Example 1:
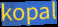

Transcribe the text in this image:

kopal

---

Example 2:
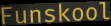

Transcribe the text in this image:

Funskool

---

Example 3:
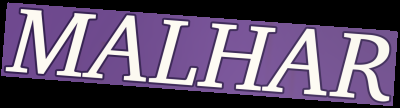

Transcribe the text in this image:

MALHAR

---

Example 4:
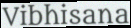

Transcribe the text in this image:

Vibhisana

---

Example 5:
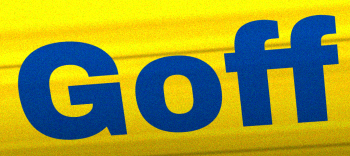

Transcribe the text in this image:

Goff